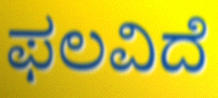
ಫಲವಿದೆ